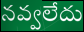
నవ్వలేదు